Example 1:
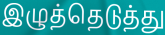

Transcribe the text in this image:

இழுத்தெடுத்து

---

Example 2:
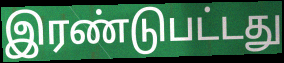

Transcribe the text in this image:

இரண்டுபட்டது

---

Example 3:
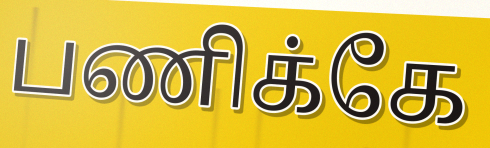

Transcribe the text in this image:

பணிக்கே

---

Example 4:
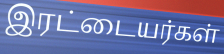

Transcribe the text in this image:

இரட்டையர்கள்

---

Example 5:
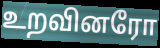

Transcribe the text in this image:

உறவினரோ